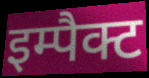
इम्पैक्ट